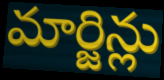
మార్జిన్లు